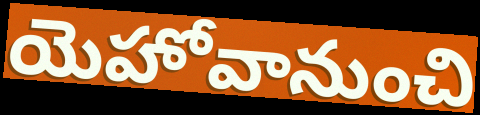
యెహోవానుంచి